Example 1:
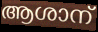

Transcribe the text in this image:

ആശാന്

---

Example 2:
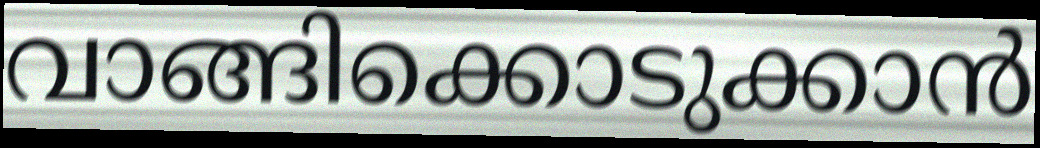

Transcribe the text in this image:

വാങ്ങിക്കൊടുക്കാൻ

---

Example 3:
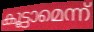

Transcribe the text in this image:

കൂട്ടാമെന്ന്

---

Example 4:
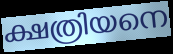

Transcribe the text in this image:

ക്ഷത്രിയനെ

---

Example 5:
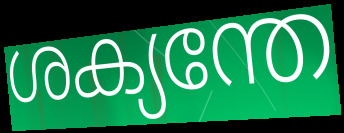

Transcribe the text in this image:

ശക്യന്തേ